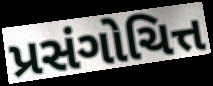
પ્રસંગોચિત્ત